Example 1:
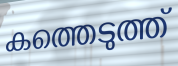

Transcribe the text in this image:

കത്തെടുത്ത്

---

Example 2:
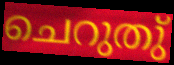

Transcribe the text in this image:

ചെറുതു്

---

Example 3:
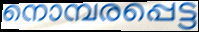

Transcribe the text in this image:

നൊമ്പരപ്പെട്ട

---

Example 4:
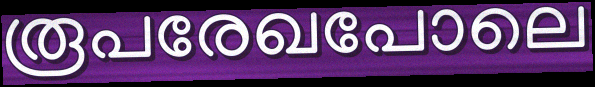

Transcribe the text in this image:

രൂപരേഖപോലെ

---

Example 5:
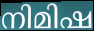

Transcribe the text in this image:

നിമിഷ